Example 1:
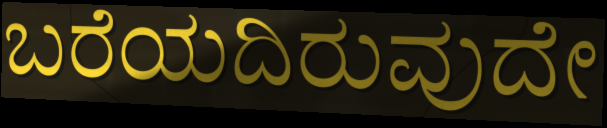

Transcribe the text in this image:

ಬರೆಯದಿರುವುದೇ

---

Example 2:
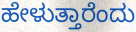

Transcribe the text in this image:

ಹೇಳುತ್ತಾರೆಂದು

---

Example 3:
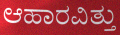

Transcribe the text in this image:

ಆಹಾರವಿತ್ತು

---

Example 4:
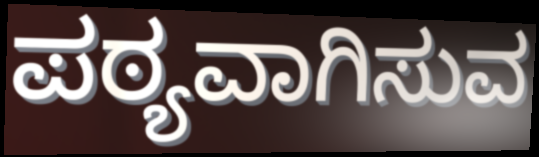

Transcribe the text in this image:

ಪಠ್ಯವಾಗಿಸುವ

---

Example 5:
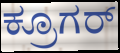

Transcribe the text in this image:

ಕ್ರೂಗರ್